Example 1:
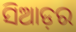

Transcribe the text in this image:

ସିଆଡ଼ର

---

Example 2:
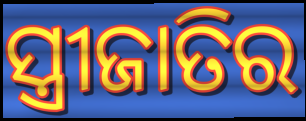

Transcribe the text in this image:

ସ୍ତ୍ରୀଜାତିର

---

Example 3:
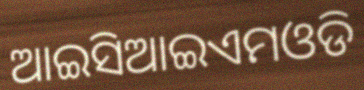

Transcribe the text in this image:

ଆଇସିଆଇଏମଓଡି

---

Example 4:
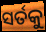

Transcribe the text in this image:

ସର୍ତକୁ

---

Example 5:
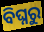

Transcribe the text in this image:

ବିଘ୍ନରୁ